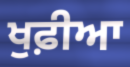
ਖੁਫ਼ੀਆ